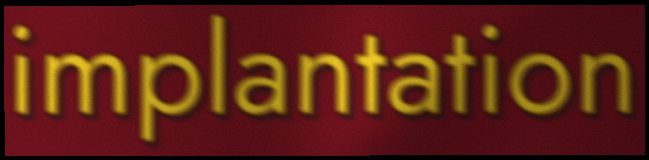
implantation